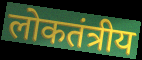
लोकतंत्रीय